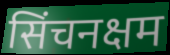
सिंचनक्षम